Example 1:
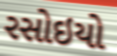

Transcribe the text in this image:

રસોઇયો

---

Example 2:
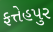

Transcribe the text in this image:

ફત્તેહપુર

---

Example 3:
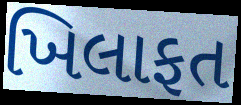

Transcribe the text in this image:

ખિલાફત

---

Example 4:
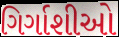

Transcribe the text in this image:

ગિર્ગાશીઓ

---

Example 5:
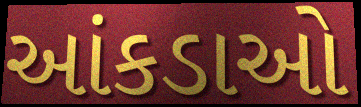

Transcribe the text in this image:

આંકડાઓ